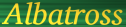
Albatross